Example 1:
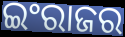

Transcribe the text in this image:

ଇଂରାଜର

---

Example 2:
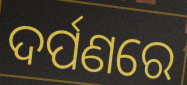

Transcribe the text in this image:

ଦର୍ପଣରେ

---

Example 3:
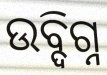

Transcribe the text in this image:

ଉବ୍ଦିଗ୍ନ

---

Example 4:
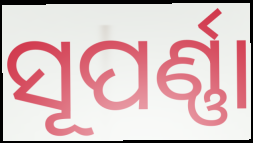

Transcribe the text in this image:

ସୂପର୍ଣ୍ଣା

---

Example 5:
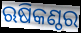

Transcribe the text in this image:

ଋଷିକଣ୍ଠର